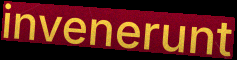
invenerunt